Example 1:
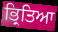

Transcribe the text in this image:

ਭ੍ਰਿਤਿਆ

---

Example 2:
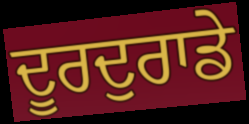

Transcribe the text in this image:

ਦੂਰਦੁਰਾਡੇ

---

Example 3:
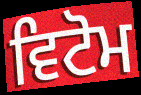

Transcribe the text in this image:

ਵਿਟੋਮ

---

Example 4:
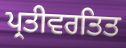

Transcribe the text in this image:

ਪ੍ਰਤੀਵਰਤਿਤ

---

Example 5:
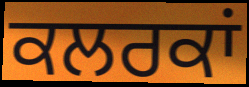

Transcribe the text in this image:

ਕਲਰਕਾਂ